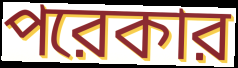
পরেকার